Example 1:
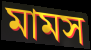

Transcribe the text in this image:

মামস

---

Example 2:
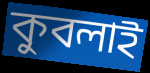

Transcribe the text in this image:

কুবলাই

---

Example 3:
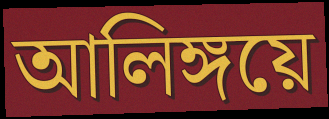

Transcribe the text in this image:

আলিঙ্গয়ে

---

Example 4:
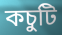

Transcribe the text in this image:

কচুটি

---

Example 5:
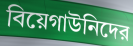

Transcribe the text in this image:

বিয়েগাউনিদের